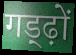
गड्‌ढ़ों